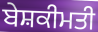
ਬੇਸ਼ਕੀਮਤੀ